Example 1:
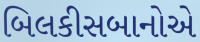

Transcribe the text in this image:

બિલકીસબાનોએ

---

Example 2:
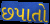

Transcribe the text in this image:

છપાતો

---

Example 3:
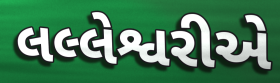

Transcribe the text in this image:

લલ્લેશ્વરીએ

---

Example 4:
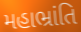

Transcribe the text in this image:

મહાભ્રાંતિ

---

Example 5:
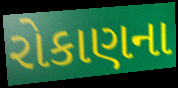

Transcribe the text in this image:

રોકાણના